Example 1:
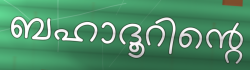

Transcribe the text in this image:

ബഹാദൂറിന്റെ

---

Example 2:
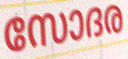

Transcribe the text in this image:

സോദര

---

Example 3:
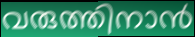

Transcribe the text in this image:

വരുത്തിനാൻ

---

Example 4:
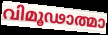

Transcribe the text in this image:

വിമൂഢാത്മാ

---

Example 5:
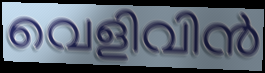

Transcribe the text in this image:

വെളിവിൻ